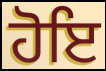
ਹੋਇ